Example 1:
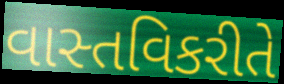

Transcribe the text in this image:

વાસ્તવિકરીતે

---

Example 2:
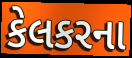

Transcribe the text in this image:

કેલકરના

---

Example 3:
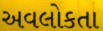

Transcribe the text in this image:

અવલોકતા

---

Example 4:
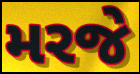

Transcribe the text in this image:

મરજે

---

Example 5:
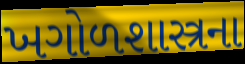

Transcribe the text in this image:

ખગોળશાસ્ત્રના